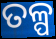
ତଳ୍ପ